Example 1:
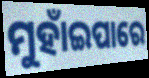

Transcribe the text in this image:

ମୁହାଁଇପାରେ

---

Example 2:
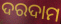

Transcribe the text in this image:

ଦରଦାମ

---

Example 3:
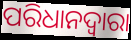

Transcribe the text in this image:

ପରିଧାନଦ୍ୱାରା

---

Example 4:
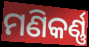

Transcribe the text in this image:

ମଣିକର୍ଣ୍ଣ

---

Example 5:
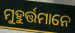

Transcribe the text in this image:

ମୁହୁର୍ତ୍ତମାନେ